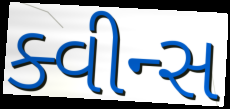
ક્વીન્સ